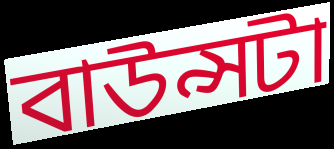
বাউন্সটা